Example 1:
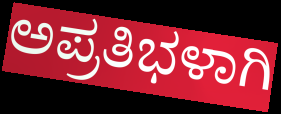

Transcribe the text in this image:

ಅಪ್ರತಿಭಳಾಗಿ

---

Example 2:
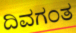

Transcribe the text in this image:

ದಿವಗಂತ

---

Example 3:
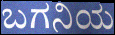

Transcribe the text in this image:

ಬಗನಿಯ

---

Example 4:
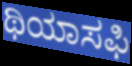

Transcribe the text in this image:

ಥಿಯಾಸಫಿ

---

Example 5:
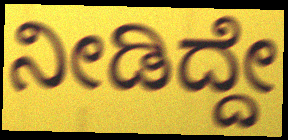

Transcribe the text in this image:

ನೀಡಿದ್ದೇ